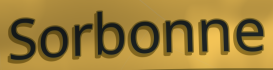
Sorbonne